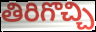
తిరిగొచ్చి